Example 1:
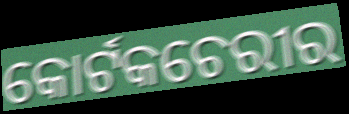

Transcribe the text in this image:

କୋର୍ଟକଚେରୀର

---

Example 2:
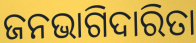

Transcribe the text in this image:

ଜନଭାଗିଦାରିତା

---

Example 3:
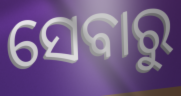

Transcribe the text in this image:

ସେବାରୁ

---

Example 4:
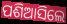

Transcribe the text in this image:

ପଶିଆସିଲେ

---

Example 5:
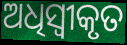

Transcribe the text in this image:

ଅଧିସ୍ୱୀକୃତ